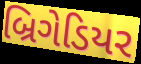
બ્રિગેડિયર